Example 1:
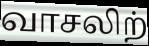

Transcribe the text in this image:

வாசலிற்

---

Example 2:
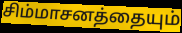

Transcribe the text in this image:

சிம்மாசனத்தையும்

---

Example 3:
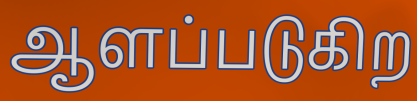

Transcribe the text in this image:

ஆளப்படுகிற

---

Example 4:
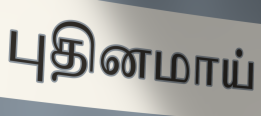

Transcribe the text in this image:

புதினமாய்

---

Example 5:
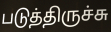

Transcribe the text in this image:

படுத்திருச்சு